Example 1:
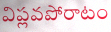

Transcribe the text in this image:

విప్లవపోరాటం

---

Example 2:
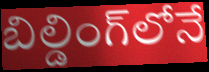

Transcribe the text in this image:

బిల్డింగ్‌లోనే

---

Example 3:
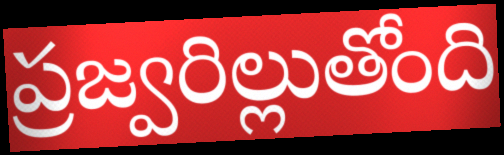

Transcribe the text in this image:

ప్రజ్వరిల్లుతోంది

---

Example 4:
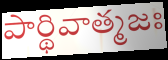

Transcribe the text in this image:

పార్థివాత్మజః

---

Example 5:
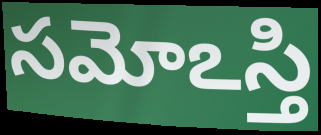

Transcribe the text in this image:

సమోఽస్తి